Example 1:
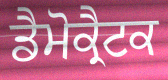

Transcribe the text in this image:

ਡੈਮੋਕ੍ਰੈਟਕ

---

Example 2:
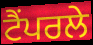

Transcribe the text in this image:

ਟੈਂਪਰਲੇ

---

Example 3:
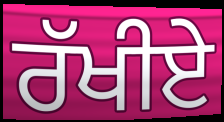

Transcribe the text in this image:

ਰੱਖੀਏ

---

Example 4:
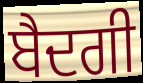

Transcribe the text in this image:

ਬੈਦਗੀ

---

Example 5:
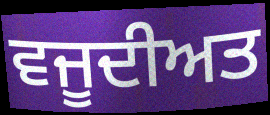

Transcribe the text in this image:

ਵਜੂਦੀਅਤ